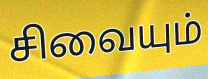
சிவையும்